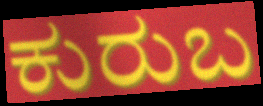
ಕುರುಬ